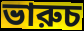
ভারুচ